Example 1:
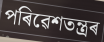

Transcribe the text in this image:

পৰিৱেশতন্ত্ৰৰ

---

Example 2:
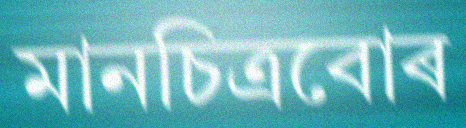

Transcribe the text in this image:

মানচিত্ৰবোৰ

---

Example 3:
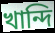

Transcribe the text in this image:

খান্দি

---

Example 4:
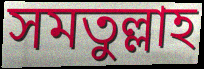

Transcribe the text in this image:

সমতুল্লাহ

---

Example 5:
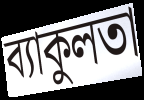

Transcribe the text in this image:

ব্যাকুলতা